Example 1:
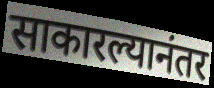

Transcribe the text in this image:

साकारल्यानंतर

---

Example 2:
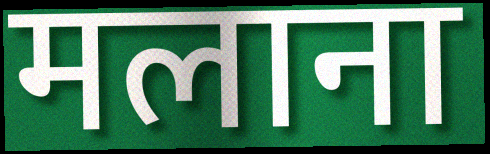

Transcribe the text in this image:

मलाना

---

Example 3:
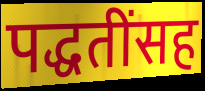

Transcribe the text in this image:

पद्धतींसह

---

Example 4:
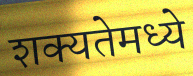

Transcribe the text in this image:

शक्यतेमध्ये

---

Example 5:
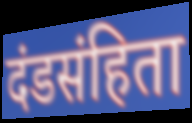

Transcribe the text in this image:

दंडसंहिता